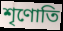
শৃণোতি